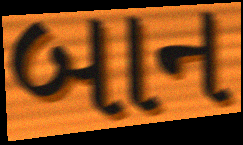
બાન